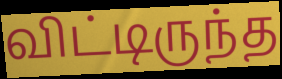
விட்டிருந்த